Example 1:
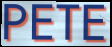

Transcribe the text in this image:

PETE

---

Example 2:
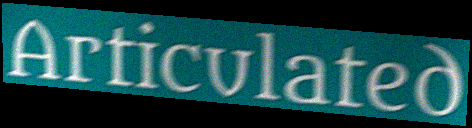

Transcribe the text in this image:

Articulated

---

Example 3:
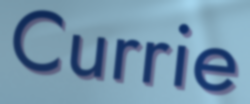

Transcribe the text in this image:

Currie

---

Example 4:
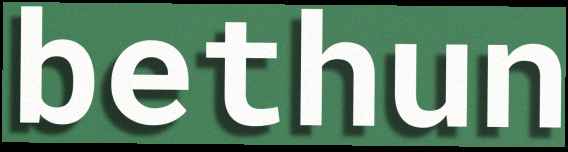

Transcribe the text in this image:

bethun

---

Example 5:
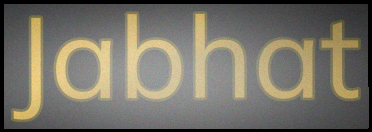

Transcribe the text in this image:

Jabhat